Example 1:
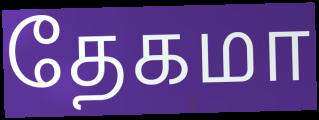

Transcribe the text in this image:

தேகமா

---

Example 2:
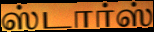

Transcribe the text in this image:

ஸ்டார்ஸ்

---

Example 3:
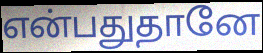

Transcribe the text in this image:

என்பதுதானே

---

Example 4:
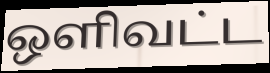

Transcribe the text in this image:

ஒளிவட்ட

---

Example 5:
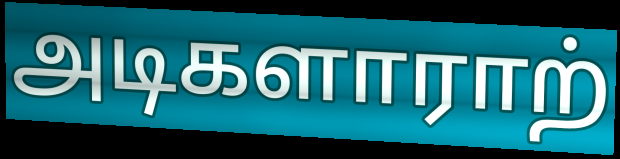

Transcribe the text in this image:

அடிகளாராற்